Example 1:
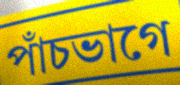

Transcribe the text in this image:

পাঁচভাগে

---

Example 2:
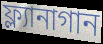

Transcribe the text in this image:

ফ্ল্যানাগান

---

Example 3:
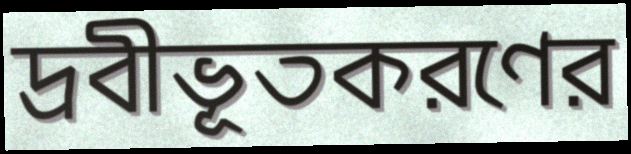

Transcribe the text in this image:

দ্রবীভূতকরণের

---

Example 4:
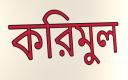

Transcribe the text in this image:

করিমুল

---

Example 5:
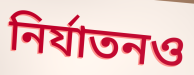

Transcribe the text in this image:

নির্যাতনও